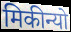
मिकीन्यो